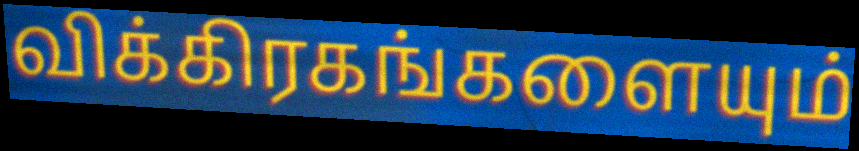
விக்கிரகங்களையும்